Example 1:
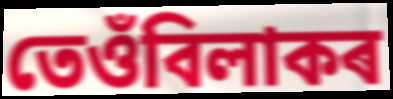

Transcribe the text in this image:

তেওঁবিলাকৰ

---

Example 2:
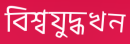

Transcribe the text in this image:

বিশ্বযুদ্ধখন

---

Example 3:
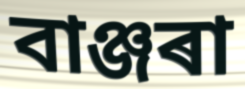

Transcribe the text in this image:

বাঞ্জৰা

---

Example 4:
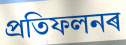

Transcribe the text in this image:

প্ৰতিফলনৰ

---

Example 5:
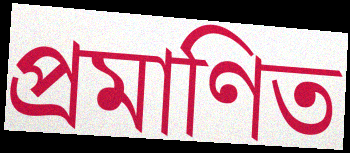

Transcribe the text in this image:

প্ৰমাণিত